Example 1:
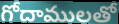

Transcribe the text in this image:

గోదాములతో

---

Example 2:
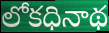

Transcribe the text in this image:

లోకధినాథ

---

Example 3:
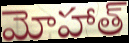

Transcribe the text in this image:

మోహాత్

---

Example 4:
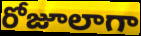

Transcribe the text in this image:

రోజూలాగా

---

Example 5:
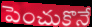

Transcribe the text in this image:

పెంచుకొనే